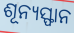
ଶୂନ୍ୟସ୍ଫାନ